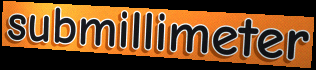
submillimeter